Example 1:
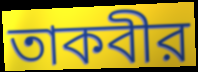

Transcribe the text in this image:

তাকবীর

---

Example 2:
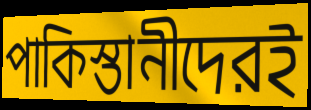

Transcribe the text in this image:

পাকিস্তানীদেরই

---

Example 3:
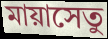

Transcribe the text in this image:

মায়াসেতু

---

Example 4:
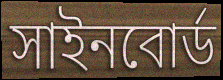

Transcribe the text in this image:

সাইনবোর্ড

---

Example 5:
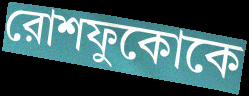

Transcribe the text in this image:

রোশফুকোকে